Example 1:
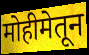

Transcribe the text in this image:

मोहीमेतून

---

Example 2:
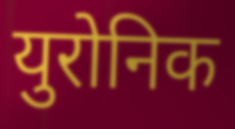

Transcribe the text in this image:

युरोनिक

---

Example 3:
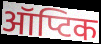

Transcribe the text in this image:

ऑप्टिक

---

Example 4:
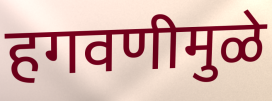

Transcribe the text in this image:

हगवणीमुळे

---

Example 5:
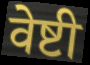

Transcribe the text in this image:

वेष्टी